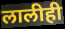
लालीही